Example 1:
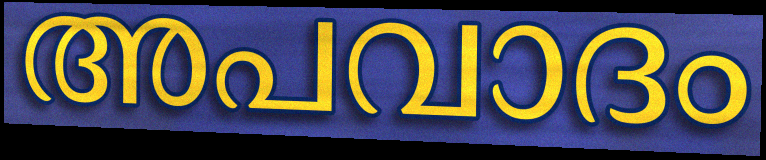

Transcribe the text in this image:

അപവാദം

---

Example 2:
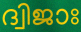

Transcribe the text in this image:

ദ്വിജാഃ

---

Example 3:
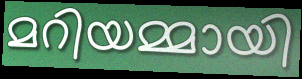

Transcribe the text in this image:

മറിയമ്മായി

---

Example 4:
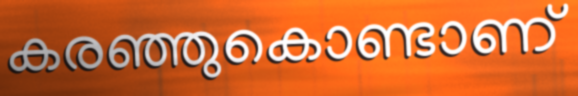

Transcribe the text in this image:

കരഞ്ഞുകൊണ്ടാണ്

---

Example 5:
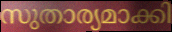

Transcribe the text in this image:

സുതാര്യമാക്കി